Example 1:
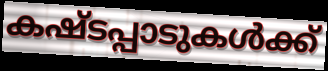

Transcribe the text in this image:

കഷ്ടപ്പാടുകൾക്ക്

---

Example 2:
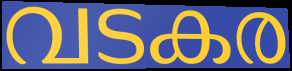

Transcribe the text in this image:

വടകര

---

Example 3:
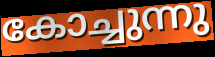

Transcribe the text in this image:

കോച്ചുന്നു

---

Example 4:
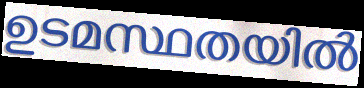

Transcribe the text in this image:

ഉടമസ്ഥതയിൽ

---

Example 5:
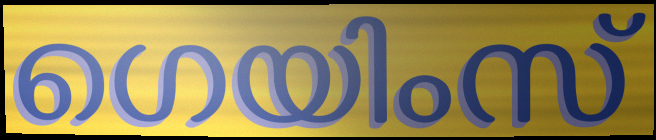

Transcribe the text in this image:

ഗെയിംസ്